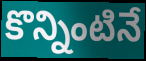
కొన్నింటినే